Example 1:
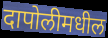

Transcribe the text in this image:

दापोलीमधील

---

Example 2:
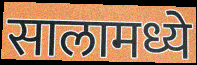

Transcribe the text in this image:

सालामध्ये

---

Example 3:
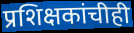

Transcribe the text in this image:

प्रशिक्षकांचीही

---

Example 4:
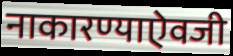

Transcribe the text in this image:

नाकारण्याऐवजी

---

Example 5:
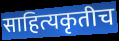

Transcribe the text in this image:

साहित्यकृतीच